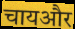
चायऔर